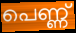
പെണ്ണ്